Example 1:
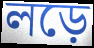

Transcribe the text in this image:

লড়ে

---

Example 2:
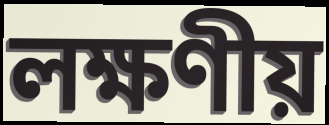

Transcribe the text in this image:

লক্ষণীয়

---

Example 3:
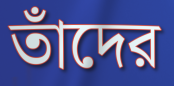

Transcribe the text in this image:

তাঁদের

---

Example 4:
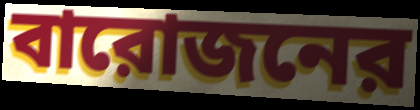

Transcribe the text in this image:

বারোজনের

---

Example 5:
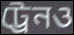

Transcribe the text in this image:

ট্রেনও